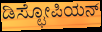
ಡಿಸ್ಟೋಪಿಯನ್